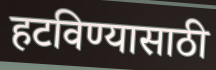
हटविण्यासाठी